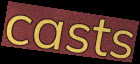
casts